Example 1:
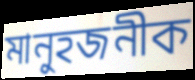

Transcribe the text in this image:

মানুহজনীক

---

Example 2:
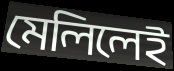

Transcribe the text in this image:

মেলিলেই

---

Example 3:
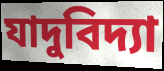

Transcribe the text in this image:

যাদুবিদ্যা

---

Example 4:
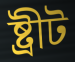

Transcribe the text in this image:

ষ্ট্ৰীট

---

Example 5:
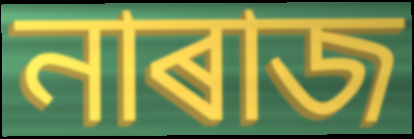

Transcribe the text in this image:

নাৰাজ